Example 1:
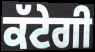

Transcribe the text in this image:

ਕੱਟੇਗੀ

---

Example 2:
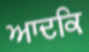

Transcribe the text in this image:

ਆਦਕਿ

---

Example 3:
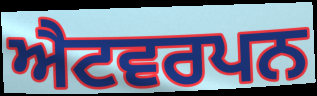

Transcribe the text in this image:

ਐਟਵਰਪਨ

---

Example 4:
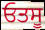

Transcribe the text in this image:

ਓਤਸੂ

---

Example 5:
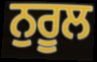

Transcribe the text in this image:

ਨੁਰੂਲ